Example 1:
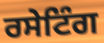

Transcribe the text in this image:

ਰਸੇਟਿੰਗ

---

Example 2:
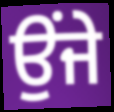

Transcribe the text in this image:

ਉਂਜੇ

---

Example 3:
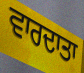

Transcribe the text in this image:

ਵਾਰਦਾਤਾ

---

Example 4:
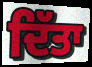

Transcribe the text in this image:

ਦਿੱਤਾ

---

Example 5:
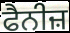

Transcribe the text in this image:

ਫੈਨੀਜ਼